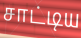
சாட்டிய